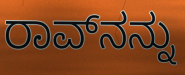
ರಾವ್‌ನನ್ನು